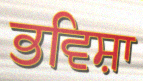
ਭਵਿਸ਼ਾ